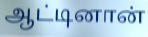
ஆட்டினான்